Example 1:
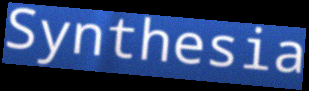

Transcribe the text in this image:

Synthesia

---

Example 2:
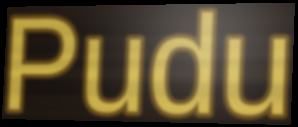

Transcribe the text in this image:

Pudu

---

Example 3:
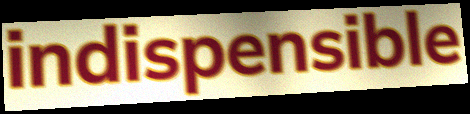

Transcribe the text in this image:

indispensible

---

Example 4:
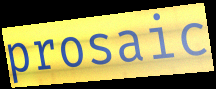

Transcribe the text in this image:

prosaic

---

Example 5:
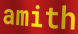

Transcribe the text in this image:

amith